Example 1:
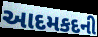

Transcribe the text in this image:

આદમકદની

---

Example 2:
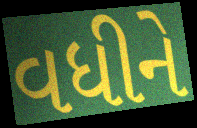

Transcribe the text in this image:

વધીને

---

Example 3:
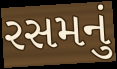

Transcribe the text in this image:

રસમનું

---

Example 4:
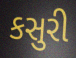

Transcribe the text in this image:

કસુરી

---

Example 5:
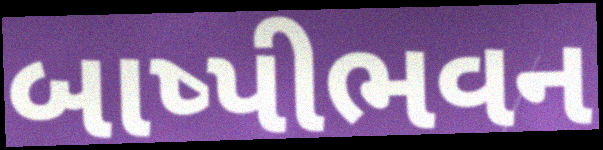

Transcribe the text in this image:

બાષ્પીભવન